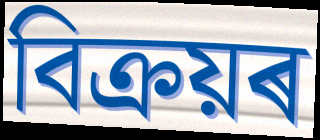
বিক্ৰয়ৰ